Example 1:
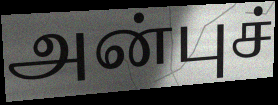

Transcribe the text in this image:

அன்புச்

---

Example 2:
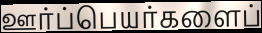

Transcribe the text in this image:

ஊர்ப்பெயர்களைப்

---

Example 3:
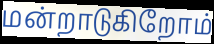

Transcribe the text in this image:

மன்றாடுகிறோம்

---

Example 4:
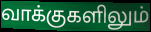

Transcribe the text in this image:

வாக்குகளிலும்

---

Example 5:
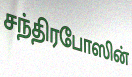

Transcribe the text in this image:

சந்திரபோஸின்